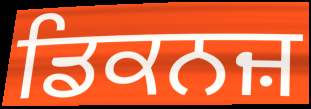
ਡਿਕਨਜ਼